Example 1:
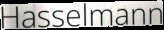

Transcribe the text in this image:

Hasselmann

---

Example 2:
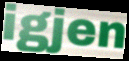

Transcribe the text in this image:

igjen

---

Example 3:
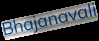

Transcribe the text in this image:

Bhajanavali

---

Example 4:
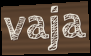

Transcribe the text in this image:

vaja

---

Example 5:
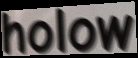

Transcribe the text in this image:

holow